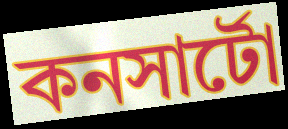
কনসার্টো